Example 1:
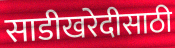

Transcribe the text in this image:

साडीखरेदीसाठी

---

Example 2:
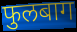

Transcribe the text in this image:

फुलबाग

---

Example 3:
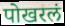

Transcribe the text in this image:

पोखरलं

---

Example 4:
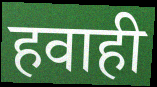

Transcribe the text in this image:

हवाही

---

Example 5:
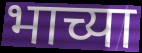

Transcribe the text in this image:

भाच्या